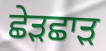
ਛੇੜਛਾੜ